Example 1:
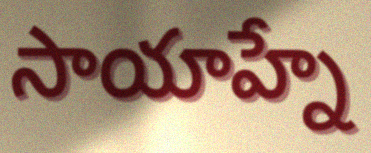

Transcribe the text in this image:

సాయాహ్నే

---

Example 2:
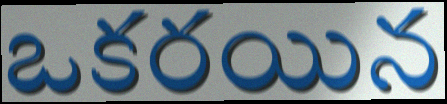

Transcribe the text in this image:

ఒకరయిన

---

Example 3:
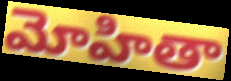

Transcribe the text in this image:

మోహితా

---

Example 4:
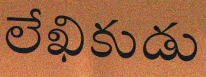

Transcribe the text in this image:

లేఖికుడు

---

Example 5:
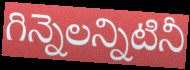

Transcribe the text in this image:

గిన్నెలన్నిటినీ